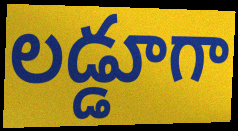
లడ్డూగా